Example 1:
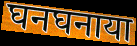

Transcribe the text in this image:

घनघनाया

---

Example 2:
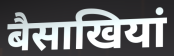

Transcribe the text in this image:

बैसाखियां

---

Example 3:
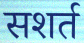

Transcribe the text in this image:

सशर्त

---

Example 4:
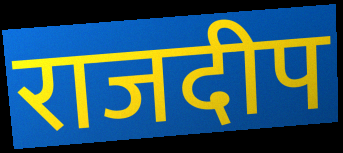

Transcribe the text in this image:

राजदीप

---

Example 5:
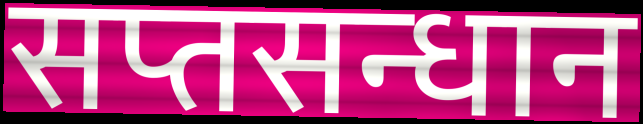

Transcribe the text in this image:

सप्तसन्धान